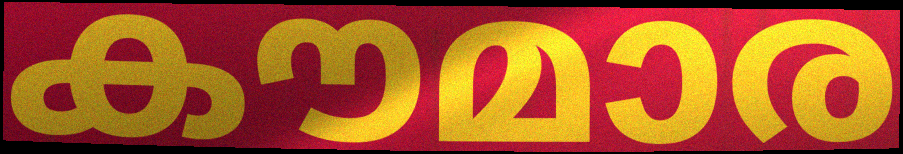
കൗമാര